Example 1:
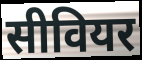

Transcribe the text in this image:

सीवियर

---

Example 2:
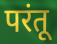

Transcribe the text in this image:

परंतू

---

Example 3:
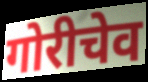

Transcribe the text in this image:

गोरीचेव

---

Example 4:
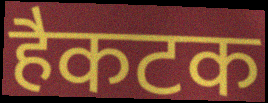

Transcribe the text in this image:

हैकटक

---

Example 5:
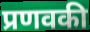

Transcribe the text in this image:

प्रणवकी